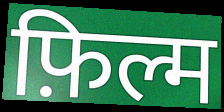
फ़िल्म